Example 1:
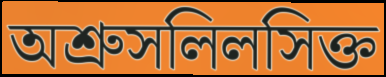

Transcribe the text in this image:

অশ্রুসলিলসিক্ত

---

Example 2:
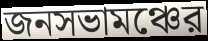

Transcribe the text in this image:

জনসভামঞ্চের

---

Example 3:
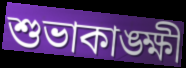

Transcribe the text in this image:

শুভাকাঙ্ক্ষী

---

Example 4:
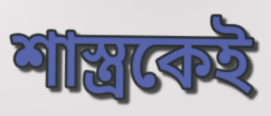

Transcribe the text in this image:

শাস্ত্রকেই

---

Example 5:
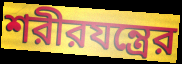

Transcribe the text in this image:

শরীরযন্ত্রের